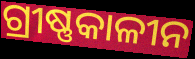
ଗ୍ରୀଷ୍ଣକାଳୀନ